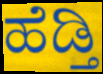
ಹೆಡ್ತಿ